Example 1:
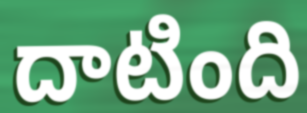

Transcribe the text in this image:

దాటింది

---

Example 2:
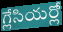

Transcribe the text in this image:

గ్లేసియర్లో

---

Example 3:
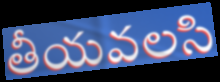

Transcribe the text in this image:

తీయవలసి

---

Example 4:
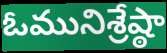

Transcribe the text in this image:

ఓమునిశ్రేష్ఠా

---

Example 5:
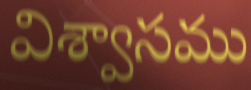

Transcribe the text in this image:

విశ్వాసము